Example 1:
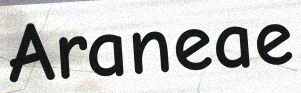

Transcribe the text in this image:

Araneae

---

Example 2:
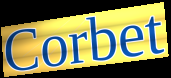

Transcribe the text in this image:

Corbet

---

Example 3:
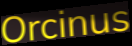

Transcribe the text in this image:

Orcinus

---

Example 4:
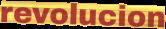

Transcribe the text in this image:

revolucion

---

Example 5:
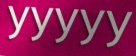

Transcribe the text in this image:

yyyyy